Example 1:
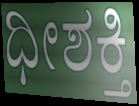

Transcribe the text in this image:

ಧೀಶಕ್ತಿ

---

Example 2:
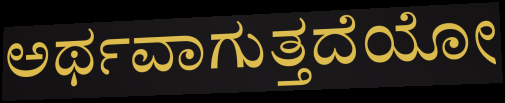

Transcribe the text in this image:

ಅರ್ಥವಾಗುತ್ತದೆಯೋ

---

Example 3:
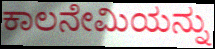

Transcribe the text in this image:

ಕಾಲನೇಮಿಯನ್ನು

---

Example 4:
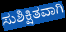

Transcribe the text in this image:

ಸುಶಿಕ್ಷಿತವಾಗಿ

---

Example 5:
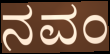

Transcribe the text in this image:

ನವಂ